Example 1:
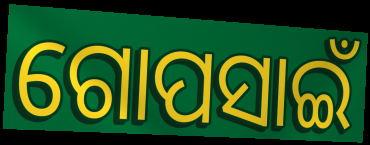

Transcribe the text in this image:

ଗୋପସାଇଁ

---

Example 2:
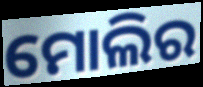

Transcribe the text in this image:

ମୋଲିର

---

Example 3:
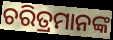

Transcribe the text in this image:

ଚରିତ୍ରମାନଙ୍କ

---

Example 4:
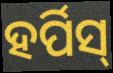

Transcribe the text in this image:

ହର୍ପିସ୍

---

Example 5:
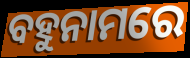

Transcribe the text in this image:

ବହୁନାମରେ